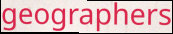
geographers